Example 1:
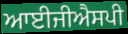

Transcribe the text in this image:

ਆਈਜੀਐਸਪੀ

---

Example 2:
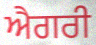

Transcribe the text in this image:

ਐਗਰੀ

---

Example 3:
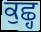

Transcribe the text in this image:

ਕੁਛ੍ਹ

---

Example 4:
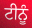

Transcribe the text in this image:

ਟੀਨੂੰ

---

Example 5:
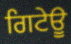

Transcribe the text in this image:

ਗਿਟੇਊ